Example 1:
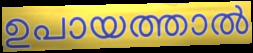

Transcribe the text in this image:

ഉപായത്താൽ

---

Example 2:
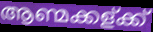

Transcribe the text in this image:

ആണ്മക്കള്ക്ക്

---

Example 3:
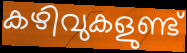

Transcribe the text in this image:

കഴിവുകളുണ്ട്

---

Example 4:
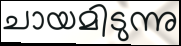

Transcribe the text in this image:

ചായമിടുന്നു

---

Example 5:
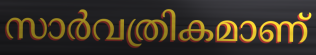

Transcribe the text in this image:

സാർവത്രികമാണ്